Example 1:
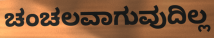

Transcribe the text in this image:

ಚಂಚಲವಾಗುವುದಿಲ್ಲ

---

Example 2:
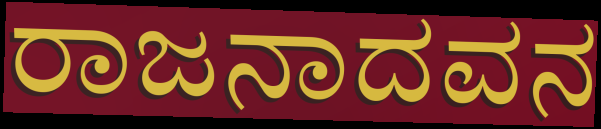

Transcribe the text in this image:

ರಾಜನಾದವನ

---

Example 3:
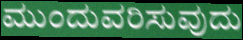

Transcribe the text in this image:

ಮುಂದುವರಿಸುವುದು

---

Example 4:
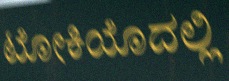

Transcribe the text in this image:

ಟೋಕಿಯೊದಲ್ಲಿ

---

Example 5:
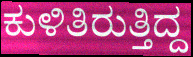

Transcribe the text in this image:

ಕುಳಿತಿರುತ್ತಿದ್ದ